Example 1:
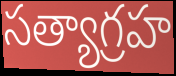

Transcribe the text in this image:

సత్యాగ్రహ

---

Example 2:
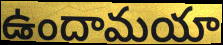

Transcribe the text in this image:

ఉందామయా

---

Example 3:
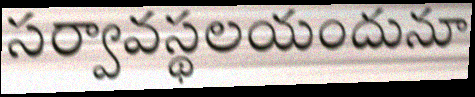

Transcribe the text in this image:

సర్వావస్థలయందునూ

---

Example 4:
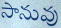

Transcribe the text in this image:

సానువు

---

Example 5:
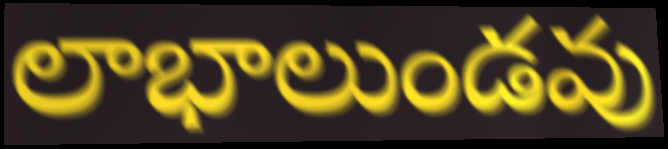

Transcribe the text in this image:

లాభాలుండవు